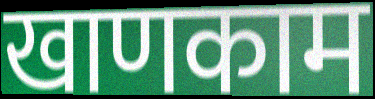
खाणकाम